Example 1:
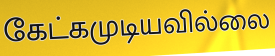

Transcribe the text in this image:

கேட்கமுடியவில்லை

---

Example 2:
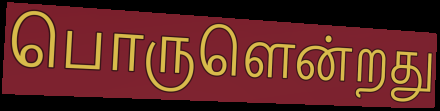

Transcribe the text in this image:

பொருளென்றது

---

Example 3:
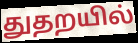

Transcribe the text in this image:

துதறயில்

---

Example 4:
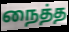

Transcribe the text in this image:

நைத்த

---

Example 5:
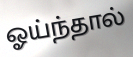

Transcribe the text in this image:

ஓய்ந்தால்